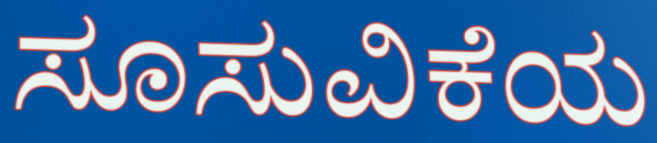
ಸೂಸುವಿಕೆಯ